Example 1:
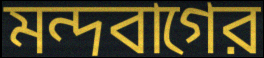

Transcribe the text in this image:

মন্দবাগের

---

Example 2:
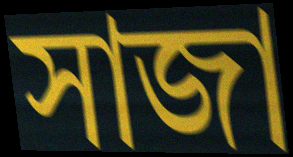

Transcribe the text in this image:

সাজা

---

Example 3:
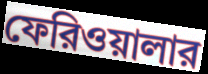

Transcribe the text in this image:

ফেরিওয়ালার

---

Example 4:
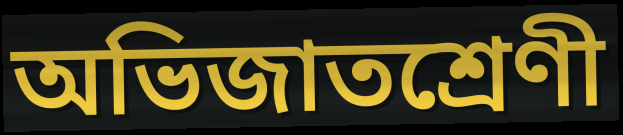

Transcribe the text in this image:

অভিজাতশ্রেণী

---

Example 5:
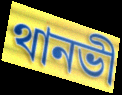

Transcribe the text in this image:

থানভী